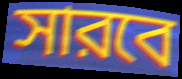
সারবে